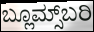
ಬ್ಲೂಮ್ಸ್‌ಬರಿ